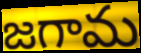
జగామ